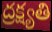
ద్రక్ష్యతి